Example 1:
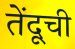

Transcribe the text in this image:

तेंदूची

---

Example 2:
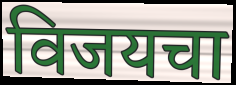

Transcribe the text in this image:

विजयचा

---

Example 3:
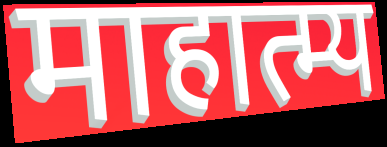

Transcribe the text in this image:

माहात्म्य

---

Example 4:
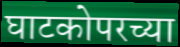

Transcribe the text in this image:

घाटकोपरच्या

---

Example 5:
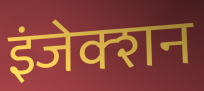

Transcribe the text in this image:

इंजेक्शन